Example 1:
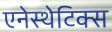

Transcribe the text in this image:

एनेस्थेटिक्स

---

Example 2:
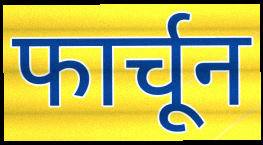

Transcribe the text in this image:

फार्चून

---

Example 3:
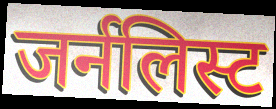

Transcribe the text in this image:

जर्नलिस्ट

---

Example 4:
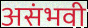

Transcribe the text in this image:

असंभवी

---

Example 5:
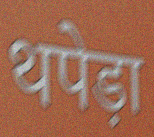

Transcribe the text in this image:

थपेड़ा